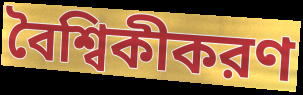
বৈশ্বিকীকরণ